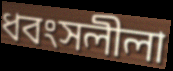
ধবংসলীলা